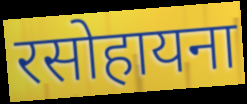
रसोहायना